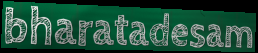
bharatadesam